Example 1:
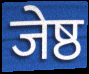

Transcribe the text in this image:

जेष्ठ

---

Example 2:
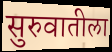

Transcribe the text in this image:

सुरुवातीला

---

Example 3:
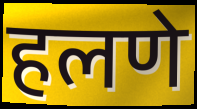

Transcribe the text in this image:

हलणे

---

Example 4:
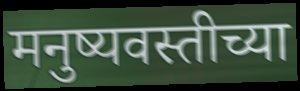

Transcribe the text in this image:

मनुष्यवस्तीच्या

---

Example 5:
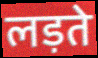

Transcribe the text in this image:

लड़ते